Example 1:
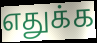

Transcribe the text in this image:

எதுக்க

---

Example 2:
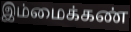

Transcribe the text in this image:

இம்மைக்கண்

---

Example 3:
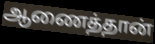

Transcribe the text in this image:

ஆணைத்தான்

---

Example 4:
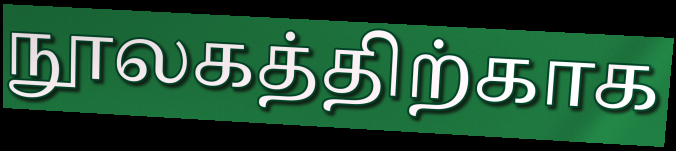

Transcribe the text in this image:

நூலகத்திற்காக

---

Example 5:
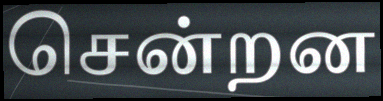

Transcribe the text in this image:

சென்றன